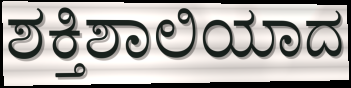
ಶಕ್ತಿಶಾಲಿಯಾದ